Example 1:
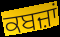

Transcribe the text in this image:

ਕਬਜ਼ਾਂ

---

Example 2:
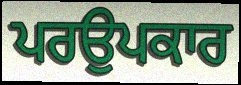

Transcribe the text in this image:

ਪਰਉਪਕਾਰ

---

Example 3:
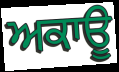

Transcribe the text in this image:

ਅਕਾਊ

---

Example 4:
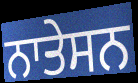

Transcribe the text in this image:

ਨਾਤੇਸਨ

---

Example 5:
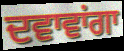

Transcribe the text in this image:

ਦਵਾਵਾਂਗਾ